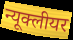
न्यूक्लीयर